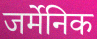
जर्मेनिक